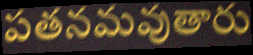
పతనమవుతారు